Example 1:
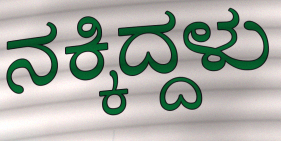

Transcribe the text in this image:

ನಕ್ಕಿದ್ದಳು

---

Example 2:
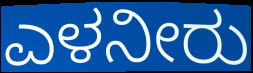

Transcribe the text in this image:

ಎಳನೀರು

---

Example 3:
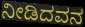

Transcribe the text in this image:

ನೀಡಿದವನ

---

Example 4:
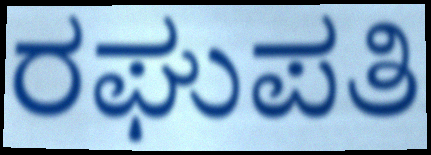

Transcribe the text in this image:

ರಘುಪತಿ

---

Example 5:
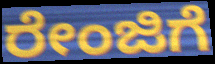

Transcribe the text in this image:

ರೇಂಜಿಗೆ